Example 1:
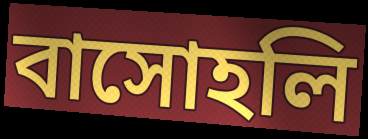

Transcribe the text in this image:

বাসোহলি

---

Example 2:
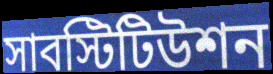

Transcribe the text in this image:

সাবস্টিটিউশন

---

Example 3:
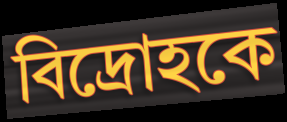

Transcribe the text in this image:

বিদ্রোহকে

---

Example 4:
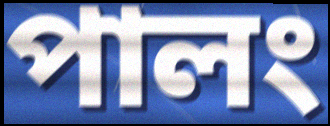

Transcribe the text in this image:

পালং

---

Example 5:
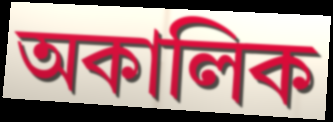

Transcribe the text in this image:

অকালিক